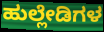
ಹುಲ್ಲೇಡಿಗಳ